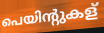
പെയിന്റുകള്